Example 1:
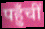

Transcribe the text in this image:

पहुँचीं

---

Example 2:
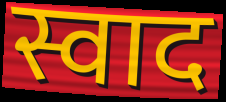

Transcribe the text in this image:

स्‍वाद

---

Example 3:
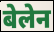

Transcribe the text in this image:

बेलेन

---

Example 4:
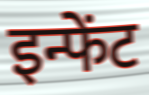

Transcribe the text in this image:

इन्फेंट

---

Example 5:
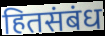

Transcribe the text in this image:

हितसंबंध